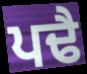
ਪਢੈ